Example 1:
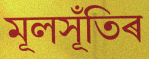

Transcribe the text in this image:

মূলসূঁতিৰ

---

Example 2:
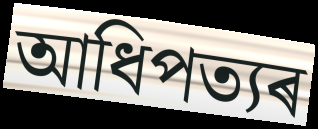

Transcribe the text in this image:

আধিপত্যৰ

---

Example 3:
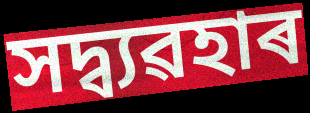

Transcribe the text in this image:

সদ্ব্যৱহাৰ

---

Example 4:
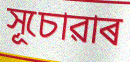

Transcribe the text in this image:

সূচোৱাৰ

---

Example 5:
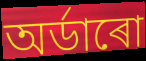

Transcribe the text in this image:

অৰ্ডাৰো